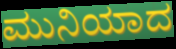
ಮುನಿಯಾದ